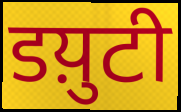
डय़ुटी